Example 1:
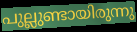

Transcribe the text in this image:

പുല്ലുണ്ടായിരുന്നു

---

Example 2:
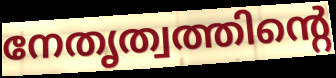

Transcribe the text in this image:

നേതൃത്വത്തിന്റെ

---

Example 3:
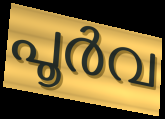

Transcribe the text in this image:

പൂർവ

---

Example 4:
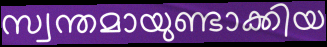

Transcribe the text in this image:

സ്വന്തമായുണ്ടാക്കിയ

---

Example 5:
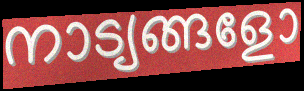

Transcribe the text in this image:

നാട്യങ്ങളോ